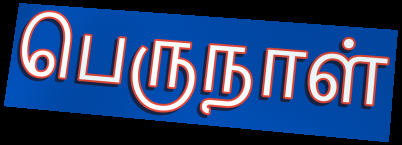
பெருநாள்